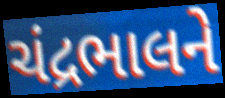
ચંદ્રભાલને